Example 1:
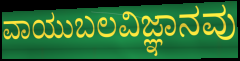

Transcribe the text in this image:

ವಾಯುಬಲವಿಜ್ಞಾನವು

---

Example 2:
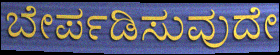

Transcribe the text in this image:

ಬೇರ್ಪಡಿಸುವುದೇ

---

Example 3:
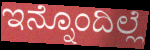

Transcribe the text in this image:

ಇನ್ನೊಂದಿಲ್ಲೆ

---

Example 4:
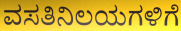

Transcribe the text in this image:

ವಸತಿನಿಲಯಗಳಿಗೆ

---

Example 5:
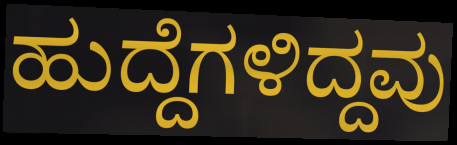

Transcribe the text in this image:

ಹುದ್ದೆಗಳಿದ್ದವು